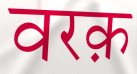
वरक़